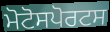
ਮੋਟੋਸਪੋਰਟਸ